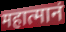
महात्मानं